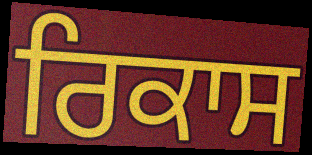
ਰਿਕਾਸ